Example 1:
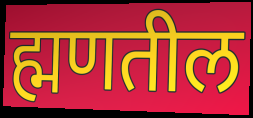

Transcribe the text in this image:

ह्मणतील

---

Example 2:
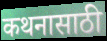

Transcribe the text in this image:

कथनासाठी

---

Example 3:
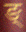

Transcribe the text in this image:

ङ्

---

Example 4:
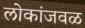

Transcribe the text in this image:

लोकांजवळ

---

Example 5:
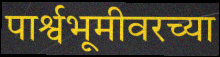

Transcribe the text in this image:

पार्श्वभूमीवरच्या